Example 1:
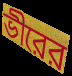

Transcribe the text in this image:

ভীরের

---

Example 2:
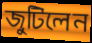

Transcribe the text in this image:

জুটিলেন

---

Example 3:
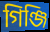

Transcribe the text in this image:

গিঞ্জি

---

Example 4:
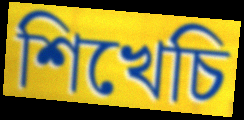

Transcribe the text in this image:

শিখেচি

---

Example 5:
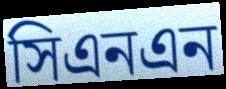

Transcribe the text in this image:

সিএনএন